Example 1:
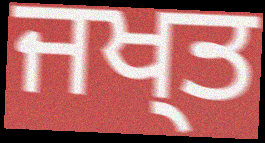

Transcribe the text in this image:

ਜਖ੍ਤ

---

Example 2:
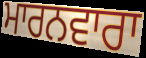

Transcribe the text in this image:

ਮਾਰਨਵਾਰਾ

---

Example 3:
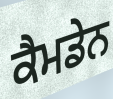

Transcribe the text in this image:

ਕੈਮਡੇਨ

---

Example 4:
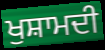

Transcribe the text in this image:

ਖੁਸ਼ਾਮਦੀ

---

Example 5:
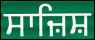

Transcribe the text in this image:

ਸਾਜ਼ਿਸ਼